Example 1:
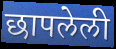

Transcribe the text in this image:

छापलेली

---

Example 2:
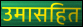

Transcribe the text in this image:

उमासहित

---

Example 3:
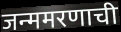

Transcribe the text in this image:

जन्ममरणाची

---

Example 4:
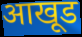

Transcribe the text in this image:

आखूड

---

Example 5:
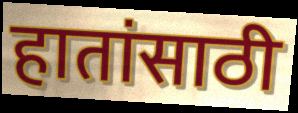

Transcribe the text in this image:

हातांसाठी